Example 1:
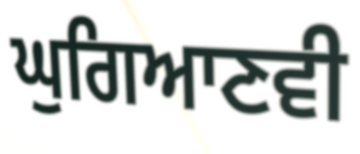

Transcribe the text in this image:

ਘੁਗਿਆਣਵੀ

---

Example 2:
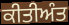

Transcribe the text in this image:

ਕੀਤੀਅੰਤ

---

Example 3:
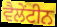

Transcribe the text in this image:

ਵੈਲੇਂਟੀਨ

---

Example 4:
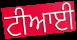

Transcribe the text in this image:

ਟੀਆਈ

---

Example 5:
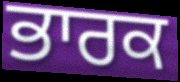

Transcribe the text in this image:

ਭਾਰਕ